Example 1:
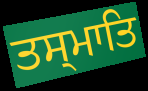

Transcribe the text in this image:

ਤਸ੍ਮਾਤਿ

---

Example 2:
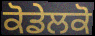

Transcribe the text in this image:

ਕੋਡੇਲਕੋ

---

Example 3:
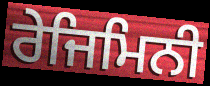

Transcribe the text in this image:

ਰੇਜਿਮਿਨੀ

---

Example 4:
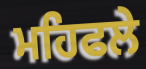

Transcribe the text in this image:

ਮਹਿਫਲੇ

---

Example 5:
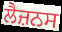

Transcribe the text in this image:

ਲੈਜ਼ਨਸ